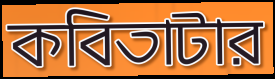
কবিতাটার